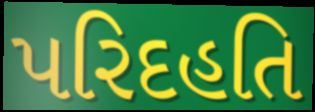
પરિદહતિ